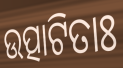
ଉତ୍ପାଟିତାଃ